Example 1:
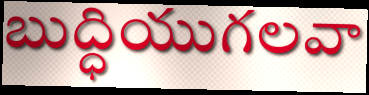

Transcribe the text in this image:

బుద్ధియుగలవా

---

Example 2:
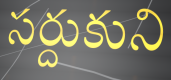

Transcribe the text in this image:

సర్దుకుని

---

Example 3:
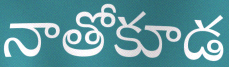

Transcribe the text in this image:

నాతోకూడ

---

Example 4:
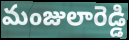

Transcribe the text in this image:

మంజులారెడ్డి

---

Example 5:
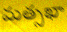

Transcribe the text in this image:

మత్సఖా